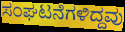
ಸಂಘಟನೆಗಳಿದ್ದವು